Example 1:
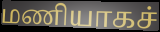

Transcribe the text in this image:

மணியாகச்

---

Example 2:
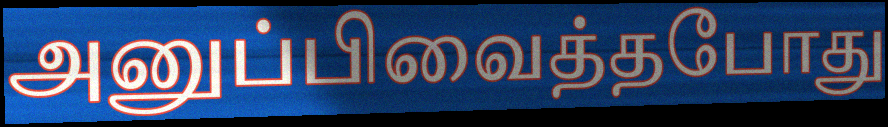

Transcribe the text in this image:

அனுப்பிவைத்தபோது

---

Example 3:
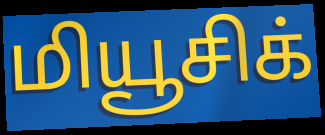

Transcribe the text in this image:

மியூசிக்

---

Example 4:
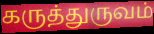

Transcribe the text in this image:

கருத்துருவம்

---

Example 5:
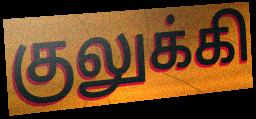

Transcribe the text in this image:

குலுக்கி